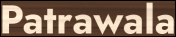
Patrawala